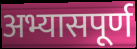
अभ्यासपूर्ण